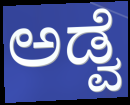
ಅಡ್ವೆ